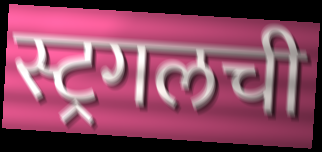
स्ट्रगलची